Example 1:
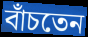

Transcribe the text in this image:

বাঁচতেন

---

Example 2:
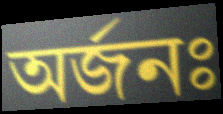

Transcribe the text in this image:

অর্জনঃ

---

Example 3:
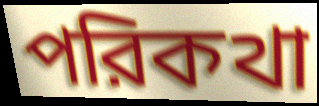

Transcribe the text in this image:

পরিকথা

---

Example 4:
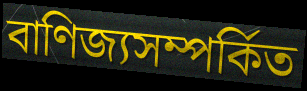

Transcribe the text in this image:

বাণিজ্যসম্পর্কিত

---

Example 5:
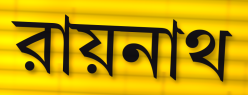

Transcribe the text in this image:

রায়নাথ